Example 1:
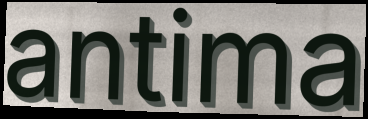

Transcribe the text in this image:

antima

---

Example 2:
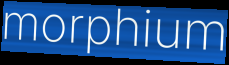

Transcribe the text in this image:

morphium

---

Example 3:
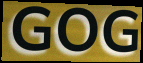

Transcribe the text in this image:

GOG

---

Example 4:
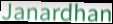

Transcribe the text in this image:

Janardhan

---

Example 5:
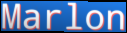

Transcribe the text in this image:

Marlon